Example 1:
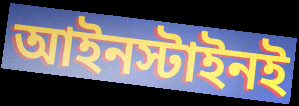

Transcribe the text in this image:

আইনস্টাইনই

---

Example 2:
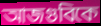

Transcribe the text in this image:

আজগুবিকে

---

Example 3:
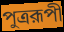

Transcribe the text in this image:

পুত্ররূপী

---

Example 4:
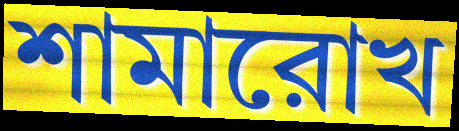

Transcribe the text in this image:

শামারোখ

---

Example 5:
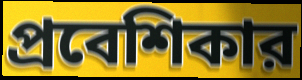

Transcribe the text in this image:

প্রবেশিকার